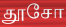
தூசோ